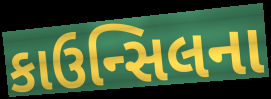
કાઉન્સિલના